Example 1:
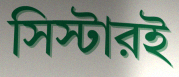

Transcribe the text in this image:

সিস্টারই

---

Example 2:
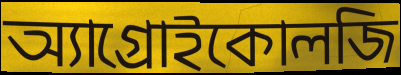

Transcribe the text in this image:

অ্যাগ্রোইকোলজি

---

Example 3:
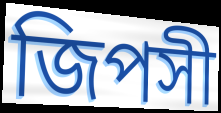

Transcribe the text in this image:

জিপসী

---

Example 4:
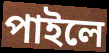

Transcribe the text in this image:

পাইলে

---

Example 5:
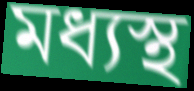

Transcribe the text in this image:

মধ্যস্থ